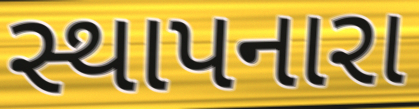
સ્થાપનારા